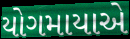
યોગમાયાએ